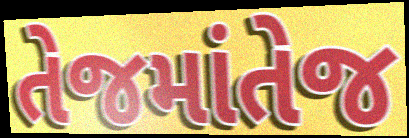
તેજમાંતેજ